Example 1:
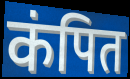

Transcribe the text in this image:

कंपित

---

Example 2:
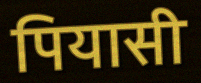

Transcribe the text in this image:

पियासी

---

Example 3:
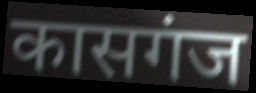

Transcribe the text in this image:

कासगंज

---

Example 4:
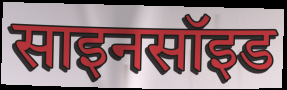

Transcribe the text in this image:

साइनसॉइड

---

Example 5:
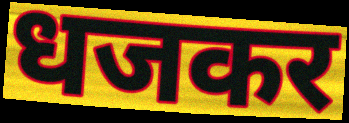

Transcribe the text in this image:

धजकर